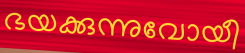
ഭയക്കുന്നുവോയീ